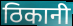
ठिकानी